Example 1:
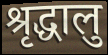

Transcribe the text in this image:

श्रृद्धालु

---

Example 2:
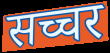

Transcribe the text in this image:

सच्चर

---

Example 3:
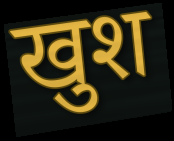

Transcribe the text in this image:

खुश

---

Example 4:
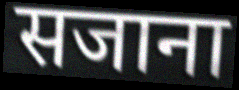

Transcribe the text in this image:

सजाना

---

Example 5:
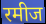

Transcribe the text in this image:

रमीज